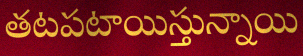
తటపటాయిస్తున్నాయి